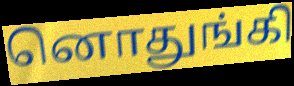
னொதுங்கி